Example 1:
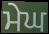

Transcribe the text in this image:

ਮੇਘ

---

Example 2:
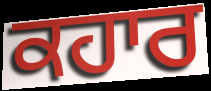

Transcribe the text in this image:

ਕਹਾਰ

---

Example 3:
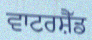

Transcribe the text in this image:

ਵਾਟਰਸ਼ੈੱਡ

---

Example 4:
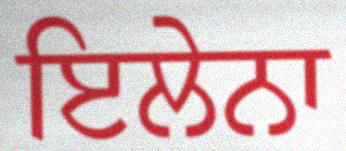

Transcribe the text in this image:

ਇਲੇਨਾ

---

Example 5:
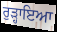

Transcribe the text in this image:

ਰੁੜ੍ਹਾਇਆ